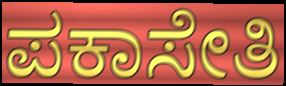
ಪಕಾಸೇತಿ